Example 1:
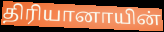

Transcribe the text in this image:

திரியானாயின்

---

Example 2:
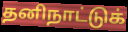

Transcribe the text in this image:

தனிநாட்டுக்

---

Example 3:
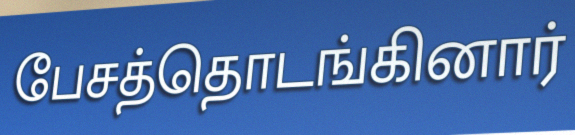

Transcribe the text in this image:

பேசத்தொடங்கினார்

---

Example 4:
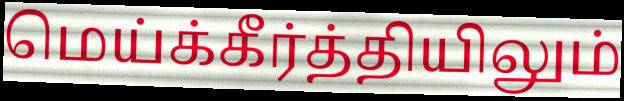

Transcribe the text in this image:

மெய்க்கீர்த்தியிலும்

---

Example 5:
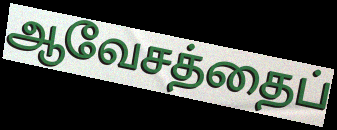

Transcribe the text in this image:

ஆவேசத்தைப்